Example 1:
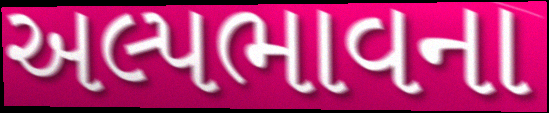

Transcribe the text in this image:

અલ્પભાવના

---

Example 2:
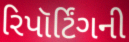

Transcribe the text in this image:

રિપૉર્ટિંગની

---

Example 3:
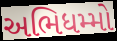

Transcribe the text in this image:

અભિધમ્મો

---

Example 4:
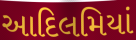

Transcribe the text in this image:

આદિલમિયાં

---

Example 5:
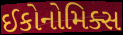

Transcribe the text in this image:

ઈકોનોમિક્સ